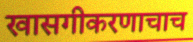
खासगीकरणाचाच